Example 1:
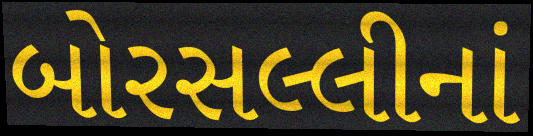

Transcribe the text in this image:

બોરસલ્લીનાં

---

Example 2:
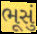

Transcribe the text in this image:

ભૂસું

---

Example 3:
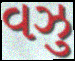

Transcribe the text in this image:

વઝુ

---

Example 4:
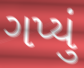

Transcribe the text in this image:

ગપ્યું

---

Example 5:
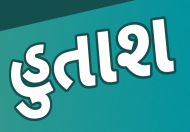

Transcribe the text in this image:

હુતાશ